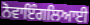
ਨੋਵਾਇੰਗਲਿਆਈ